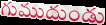
గుముదుండు